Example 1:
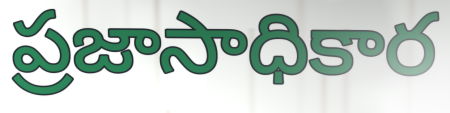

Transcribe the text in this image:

ప్రజాసాధికార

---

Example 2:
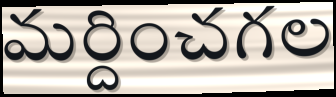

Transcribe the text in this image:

మర్దించగల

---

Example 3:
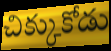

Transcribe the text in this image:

చిక్కుకోడు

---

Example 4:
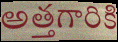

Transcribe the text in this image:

అత్తగారికి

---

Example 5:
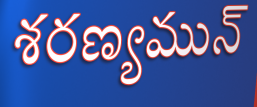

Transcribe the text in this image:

శరణ్యమున్